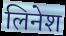
लिनेश